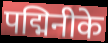
पद्मिनीके